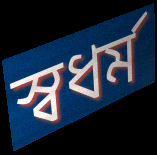
স্বধর্ম